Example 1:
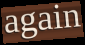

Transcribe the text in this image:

again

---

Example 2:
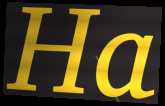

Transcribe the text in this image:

Ha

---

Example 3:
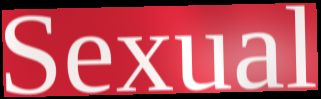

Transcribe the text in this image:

Sexual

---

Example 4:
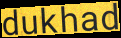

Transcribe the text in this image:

dukhad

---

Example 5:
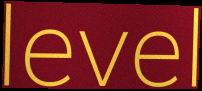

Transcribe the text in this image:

level